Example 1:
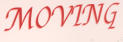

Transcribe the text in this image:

MOVING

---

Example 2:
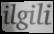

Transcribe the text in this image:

ilgili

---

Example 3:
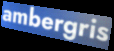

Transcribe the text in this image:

ambergris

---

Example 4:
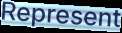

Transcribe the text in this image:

Represent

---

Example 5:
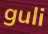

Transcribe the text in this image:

guli